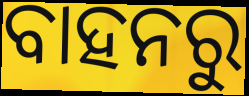
ବାହନରୁ